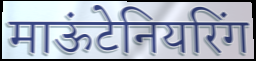
माऊंटेनियरिंग